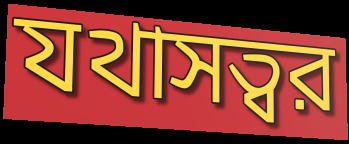
যথাসত্বর